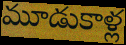
మూడుకాళ్ల